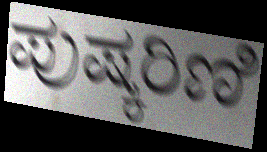
ಪುಷ್ಕರಿಣಿ